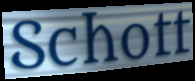
Schott